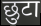
छुटा